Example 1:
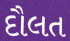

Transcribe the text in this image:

દૌલત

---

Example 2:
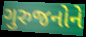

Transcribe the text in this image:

ગુરુજનોને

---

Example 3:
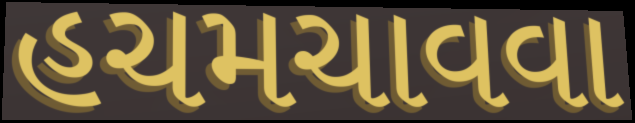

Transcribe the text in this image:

હચમચાવવા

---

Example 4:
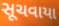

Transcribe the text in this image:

સૂચવાયા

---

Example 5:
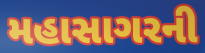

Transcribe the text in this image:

મહાસાગરની